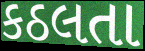
કઠલતા